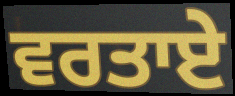
ਵਰਤਾਏ